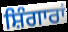
ਸ਼ਿੰਗਾਰਾਂ